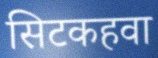
सिटकहवा